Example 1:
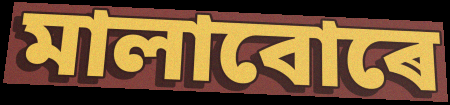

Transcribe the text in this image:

মালাবোৰে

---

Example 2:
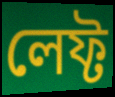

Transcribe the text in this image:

লেফ্ট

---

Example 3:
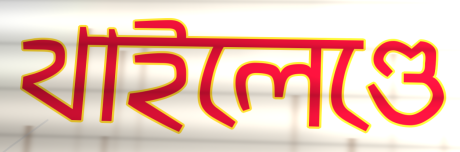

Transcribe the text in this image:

থাইলেণ্ডে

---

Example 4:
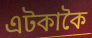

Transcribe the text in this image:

এটকাকৈ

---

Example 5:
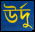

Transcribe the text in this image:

উৰ্দু